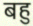
बहु